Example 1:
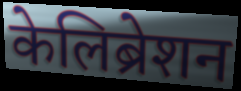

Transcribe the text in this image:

केलिब्रेशन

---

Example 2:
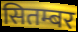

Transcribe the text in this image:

सितम्बर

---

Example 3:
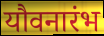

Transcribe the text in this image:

यौवनारंभ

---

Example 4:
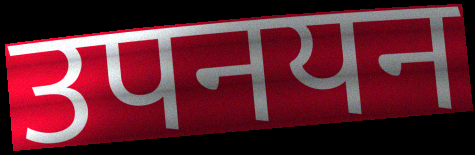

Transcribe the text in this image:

उपनयन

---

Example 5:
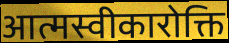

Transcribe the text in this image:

आत्मस्वीकारोक्ति